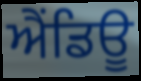
ਐਂਡਿਊ